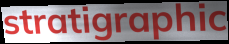
stratigraphic